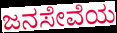
ಜನಸೇವೆಯ